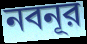
নবনূর